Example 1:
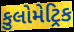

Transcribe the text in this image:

કુલોમેટ્રિક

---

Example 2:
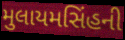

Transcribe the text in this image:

મુલાયમસિંહની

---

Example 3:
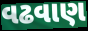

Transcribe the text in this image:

વઢવાણ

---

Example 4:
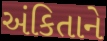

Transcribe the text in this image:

અંકિતાને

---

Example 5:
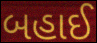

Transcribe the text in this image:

બહાઈ